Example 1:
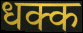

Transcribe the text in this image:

धक्क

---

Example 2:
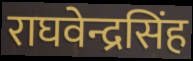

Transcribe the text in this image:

राघवेन्द्रसिंह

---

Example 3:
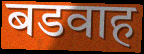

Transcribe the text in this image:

बडवाह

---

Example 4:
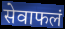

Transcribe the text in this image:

सेवाफलं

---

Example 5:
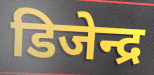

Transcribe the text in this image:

डिजेन्द्र